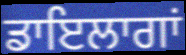
ਡਾਇਲਾਗਾਂ